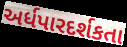
અર્ધપારદર્શકતા